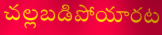
చల్లబడిపోయారట